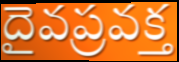
దైవప్రవక్త